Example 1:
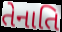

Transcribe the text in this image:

તેનાતિ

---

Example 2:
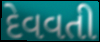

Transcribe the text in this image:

દેવવતી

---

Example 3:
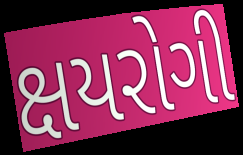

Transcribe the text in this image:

ક્ષયરોગી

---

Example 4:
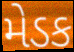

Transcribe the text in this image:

મેડક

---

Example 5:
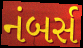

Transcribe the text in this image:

નંબર્સ